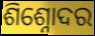
ଶିଶ୍ନୋଦର